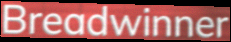
Breadwinner